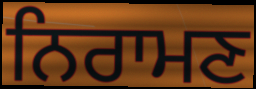
ਨਿਰਾਮਣ